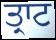
ਤ੍ਰਾਟ